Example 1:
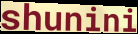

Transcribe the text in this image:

shunini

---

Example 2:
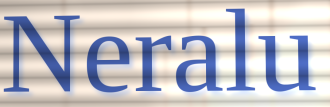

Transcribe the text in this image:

Neralu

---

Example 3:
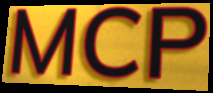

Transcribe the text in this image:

MCP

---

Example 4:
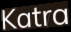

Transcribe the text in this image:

Katra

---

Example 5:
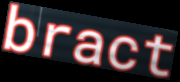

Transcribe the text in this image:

bract